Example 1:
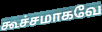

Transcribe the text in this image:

கூச்சமாகவே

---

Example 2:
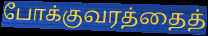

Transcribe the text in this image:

போக்குவரத்தைத்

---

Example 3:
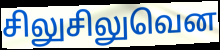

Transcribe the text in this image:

சிலுசிலுவென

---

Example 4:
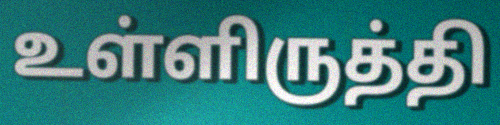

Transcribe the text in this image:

உள்ளிருத்தி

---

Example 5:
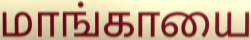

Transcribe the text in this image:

மாங்காயை